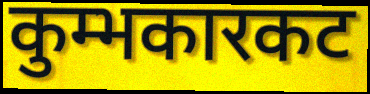
कुम्भकारकट